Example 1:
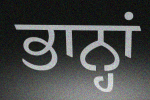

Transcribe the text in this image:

ਭਾਨ੍ਹਾਂ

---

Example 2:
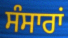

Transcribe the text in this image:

ਸੰਸਾਰਾਂ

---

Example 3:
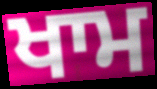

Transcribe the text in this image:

ਖਾਮ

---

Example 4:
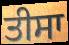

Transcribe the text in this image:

ਤੀਸਾ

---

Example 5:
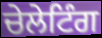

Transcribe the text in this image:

ਚੇਲੇਟਿੰਗ